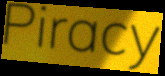
Piracy